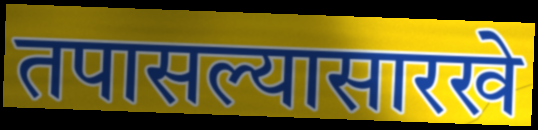
तपासल्यासारखे